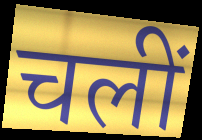
चलीं